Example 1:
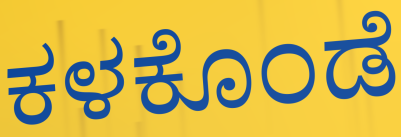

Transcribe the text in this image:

ಕಳಕೊಂಡೆ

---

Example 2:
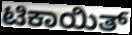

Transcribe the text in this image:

ಟಿಕಾಯಿತ್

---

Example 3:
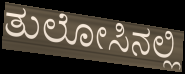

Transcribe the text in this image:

ತುಲೋಸಿನಲ್ಲಿ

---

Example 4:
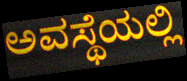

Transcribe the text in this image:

ಅವಸ್ಥೆಯಲ್ಲಿ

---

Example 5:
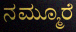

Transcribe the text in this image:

ನಮ್ಮೂರೆ